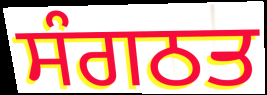
ਸੰਗਠਤ